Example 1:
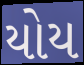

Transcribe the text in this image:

યોય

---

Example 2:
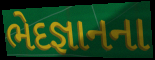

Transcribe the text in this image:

ભેદજ્ઞાનના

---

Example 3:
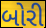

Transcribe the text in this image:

બોરી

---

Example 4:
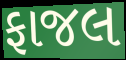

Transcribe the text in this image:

ફાજલ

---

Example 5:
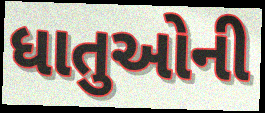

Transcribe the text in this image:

ધાતુઓની